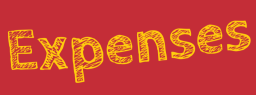
Expenses